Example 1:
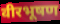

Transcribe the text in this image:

वीरभूषण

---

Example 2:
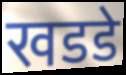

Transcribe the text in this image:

खडडे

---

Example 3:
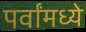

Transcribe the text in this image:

पर्वांमध्ये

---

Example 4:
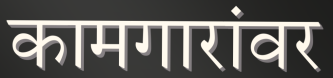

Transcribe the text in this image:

कामगारांवर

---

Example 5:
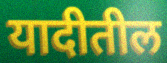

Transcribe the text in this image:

यादीतील